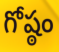
గోష్ఠం